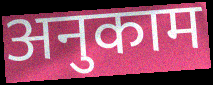
अनुकाम